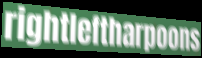
rightleftharpoons